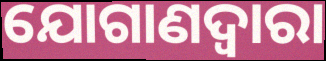
ଯୋଗାଣଦ୍ଵାରା